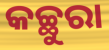
କଚ୍ଛୁରା